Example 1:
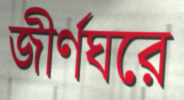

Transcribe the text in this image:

জীর্ণঘরে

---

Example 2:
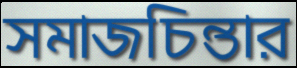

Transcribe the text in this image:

সমাজচিন্তার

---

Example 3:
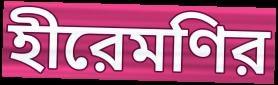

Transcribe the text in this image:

হীরেমণির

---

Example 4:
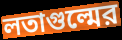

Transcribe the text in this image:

লতাগুল্মের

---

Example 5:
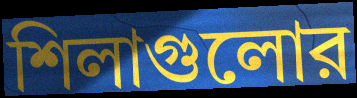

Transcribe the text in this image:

শিলাগুলোর